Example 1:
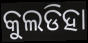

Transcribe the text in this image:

କୁଲଡିହା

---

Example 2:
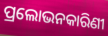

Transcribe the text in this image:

ପ୍ରଲୋଭନକାରିଣୀ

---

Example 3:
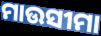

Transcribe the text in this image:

ମାଉସୀମା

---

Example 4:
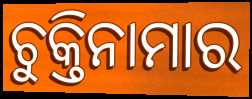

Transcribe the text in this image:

ଚୁକ୍ତିନାମାର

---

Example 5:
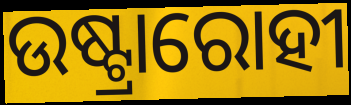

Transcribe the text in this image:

ଉଷ୍ଟ୍ରାରୋହୀ